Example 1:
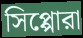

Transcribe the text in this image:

সিপ্পোরা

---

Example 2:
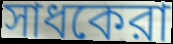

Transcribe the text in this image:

সাধকেরা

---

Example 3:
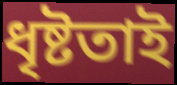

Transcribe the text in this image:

ধৃষ্টতাই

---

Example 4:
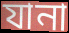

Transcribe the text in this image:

যানা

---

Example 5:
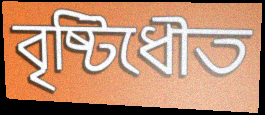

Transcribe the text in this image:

বৃষ্টিধৌত